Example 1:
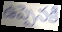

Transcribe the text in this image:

ఉప్పెనకి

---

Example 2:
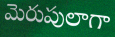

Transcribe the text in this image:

మెరుపులాగా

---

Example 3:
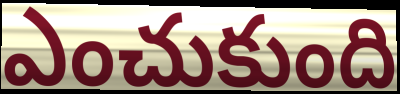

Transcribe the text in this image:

ఎంచుకుంది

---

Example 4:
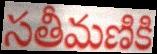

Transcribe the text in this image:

సతీమణికి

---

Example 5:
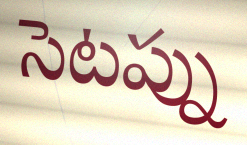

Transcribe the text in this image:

సెటప్ను